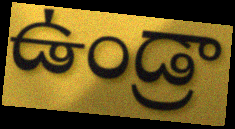
ఉండ్రా